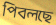
পিবলছে